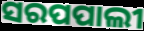
ସରପପାଲୀ